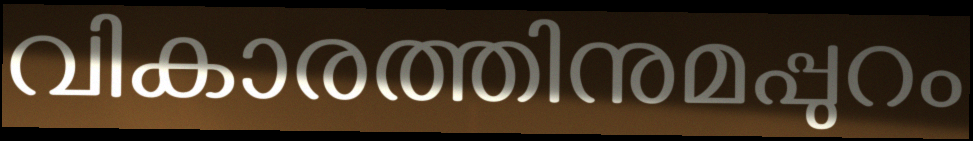
വികാരത്തിനുമപ്പുറം